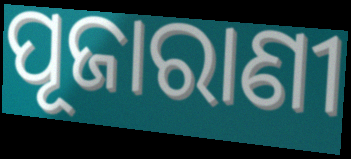
ପୂଜାରାଣୀ